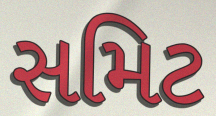
સમિટ